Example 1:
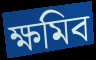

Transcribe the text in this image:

ক্ষমিব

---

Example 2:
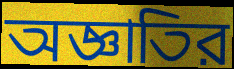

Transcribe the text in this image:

অজ্ঞাতির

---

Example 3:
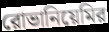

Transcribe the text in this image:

রোভানিয়েমির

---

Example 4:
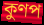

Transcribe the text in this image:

কুণপ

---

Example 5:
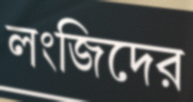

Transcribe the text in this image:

লংজিদের